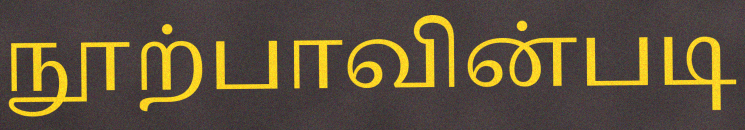
நூற்பாவின்படி